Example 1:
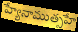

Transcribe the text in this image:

హ్యేనాముత్సహే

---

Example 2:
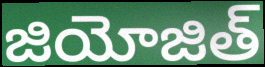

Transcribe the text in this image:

జియోజిత్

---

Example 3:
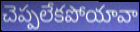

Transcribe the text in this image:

చెప్పలేకపోయావా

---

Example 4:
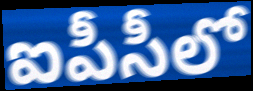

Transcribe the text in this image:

ఐపీసీలో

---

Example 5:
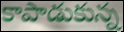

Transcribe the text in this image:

కాపాడుకున్న